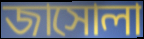
জাসোলা